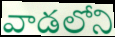
వాడలోని